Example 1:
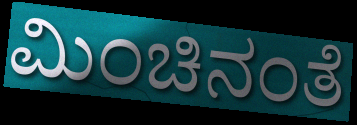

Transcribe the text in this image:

ಮಿಂಚಿನಂತೆ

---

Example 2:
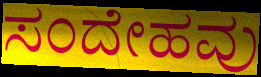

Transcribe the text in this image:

ಸಂದೇಹವು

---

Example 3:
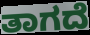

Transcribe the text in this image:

ತಾಗದೆ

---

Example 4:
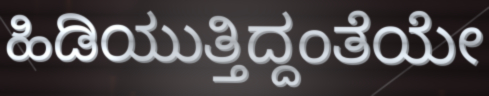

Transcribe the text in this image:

ಹಿಡಿಯುತ್ತಿದ್ದಂತೆಯೇ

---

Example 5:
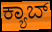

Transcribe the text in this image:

ಕ್ಯಾಬ್